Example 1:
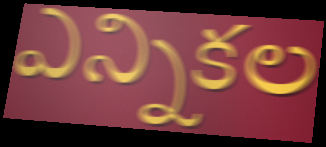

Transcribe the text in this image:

ఎన్నికల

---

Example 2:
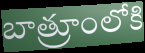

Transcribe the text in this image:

బాత్రూంలోకి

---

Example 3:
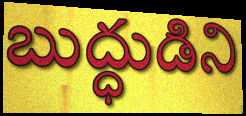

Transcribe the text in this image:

బుద్ధుడిని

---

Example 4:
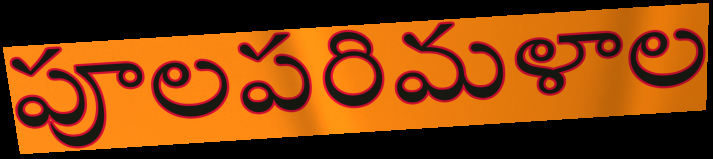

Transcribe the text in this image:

పూలపరిమళాల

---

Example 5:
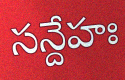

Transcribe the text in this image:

సన్దేహః